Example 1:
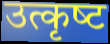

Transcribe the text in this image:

उत्कृष्‍ट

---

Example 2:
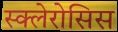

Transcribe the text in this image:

स्क्लेरोसिस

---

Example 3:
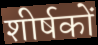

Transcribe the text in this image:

शीर्षकों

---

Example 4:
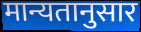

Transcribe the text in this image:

मान्यतानुसार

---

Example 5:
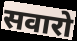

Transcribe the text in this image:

सवारो